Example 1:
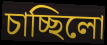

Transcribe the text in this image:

চাচ্ছিলো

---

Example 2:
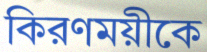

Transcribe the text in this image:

কিরণময়ীকে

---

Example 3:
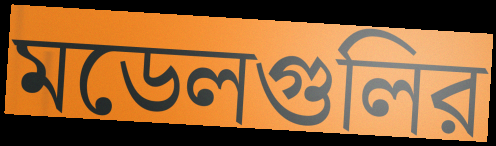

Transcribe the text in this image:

মডেলগুলির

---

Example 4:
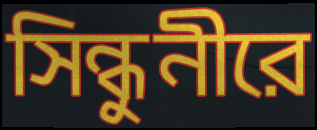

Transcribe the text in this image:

সিন্ধুনীরে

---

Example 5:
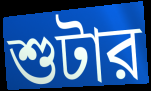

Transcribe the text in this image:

শুটার